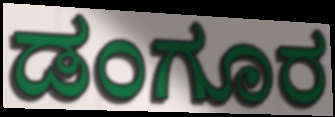
ಡಂಗೂರ